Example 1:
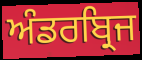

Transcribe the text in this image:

ਅੰਡਰਬ੍ਰਿਜ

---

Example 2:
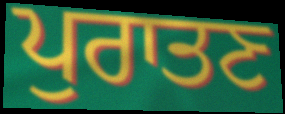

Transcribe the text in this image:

ਪੁਰਾਤਣ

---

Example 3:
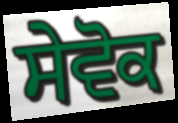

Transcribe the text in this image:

ਸੇਵੋਕ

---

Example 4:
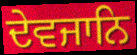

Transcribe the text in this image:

ਦੇਵਜਾਨਿ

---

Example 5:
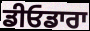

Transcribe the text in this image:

ਡੀਓਡਾਰਾ